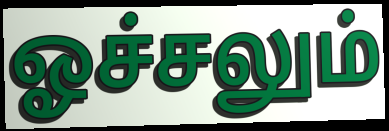
ஓச்சலும்